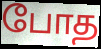
போத